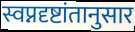
स्वप्नदृष्टांतानुसार